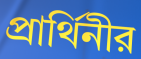
প্রার্থিনীর